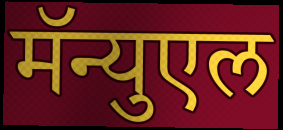
मॅन्युएल